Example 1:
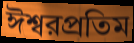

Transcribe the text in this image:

ঈশ্বরপ্রতিম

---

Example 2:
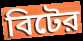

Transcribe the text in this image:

বিটের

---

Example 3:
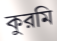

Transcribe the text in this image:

কুরমি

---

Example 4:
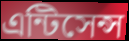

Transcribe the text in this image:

এন্টিসেন্স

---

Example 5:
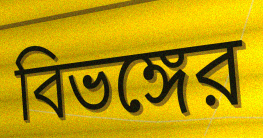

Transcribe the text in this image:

বিভঙ্গের